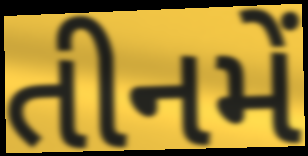
તીનમેં